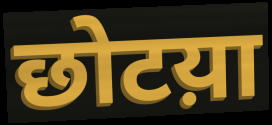
छोटय़ा